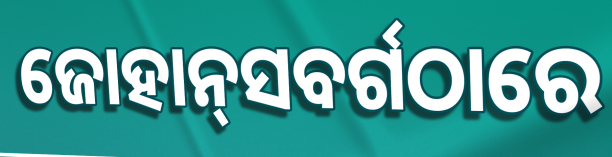
ଜୋହାନ୍‌ସବର୍ଗଠାରେ